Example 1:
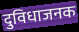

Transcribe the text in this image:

दुविधाजनक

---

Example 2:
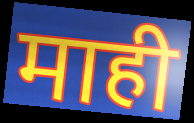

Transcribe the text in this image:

माही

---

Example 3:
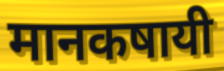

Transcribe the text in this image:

मानकषायी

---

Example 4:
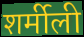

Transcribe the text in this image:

शर्मीली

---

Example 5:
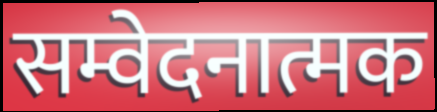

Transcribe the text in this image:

सम्वेदनात्मक